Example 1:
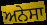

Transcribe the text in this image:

ਅਨੇਸਾ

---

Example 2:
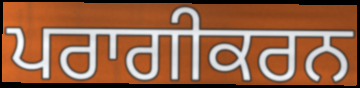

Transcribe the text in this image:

ਪਰਾਗੀਕਰਨ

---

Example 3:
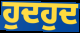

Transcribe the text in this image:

ਹੁਦਹੁਦ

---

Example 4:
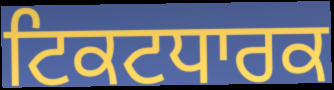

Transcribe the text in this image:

ਟਿਕਟਧਾਰਕ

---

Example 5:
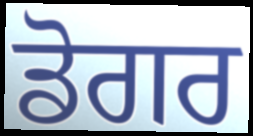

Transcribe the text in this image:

ਡੋਗਰ